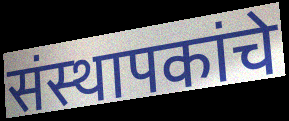
संस्थापकांचे